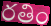
రతిం